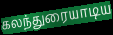
கலந்துரையாடிய